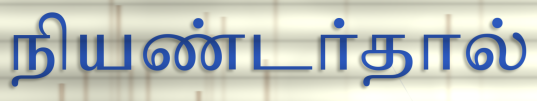
நியண்டர்தால்